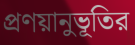
প্রণয়ানুভূতির